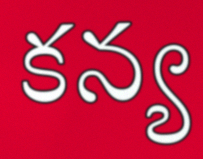
కన్య